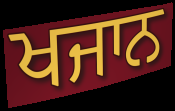
ਖਜਾਨ